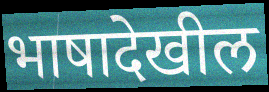
भाषादेखील